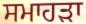
ਸਮਾਹੜਾ